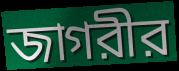
জাগরীর